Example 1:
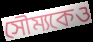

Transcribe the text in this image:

সৌম্যকেও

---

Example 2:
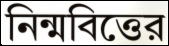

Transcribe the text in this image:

নিন্মবিত্তের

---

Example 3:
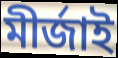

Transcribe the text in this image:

মীর্জাই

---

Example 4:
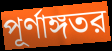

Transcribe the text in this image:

পূর্ণাঙ্গতর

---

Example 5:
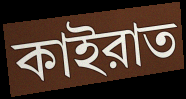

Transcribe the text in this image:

কাইরাত